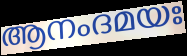
ആനംദമയഃ